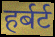
हर्बर्ट